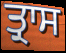
ਤ੍ਰਾਸ